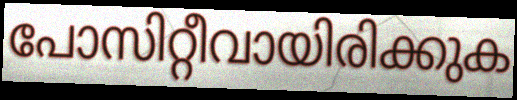
പോസിറ്റീവായിരിക്കുക